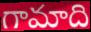
గామాది